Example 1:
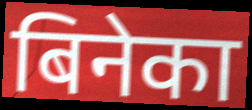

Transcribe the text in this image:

बिनेका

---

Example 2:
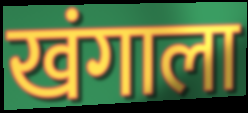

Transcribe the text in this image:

खंगाला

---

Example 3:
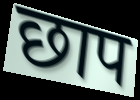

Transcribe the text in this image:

छाप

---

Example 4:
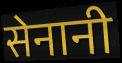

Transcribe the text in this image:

सेनानी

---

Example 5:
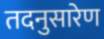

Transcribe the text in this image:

तदनुसारेण